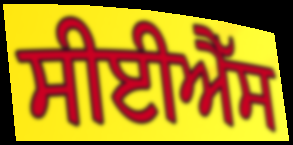
ਸੀਈਐੱਸ